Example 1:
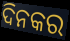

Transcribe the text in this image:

ଦିନକର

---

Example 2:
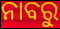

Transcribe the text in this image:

ନାବରୁ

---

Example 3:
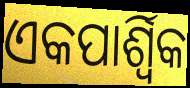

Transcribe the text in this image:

ଏକପାର୍ଶ୍ୱିକ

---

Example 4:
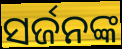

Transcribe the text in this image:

ସର୍ଜନଙ୍କ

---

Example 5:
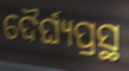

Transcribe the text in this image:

ଦୈର୍ଘ୍ୟପ୍ରସ୍ଥ